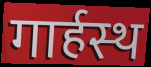
गार्हस्थ